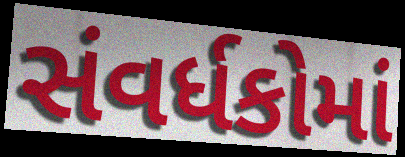
સંવર્ધકોમાં